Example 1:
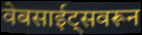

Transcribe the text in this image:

वेबसाईट्सवरून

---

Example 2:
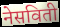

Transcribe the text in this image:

नेसविती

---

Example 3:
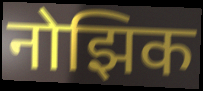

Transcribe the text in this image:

नोझिक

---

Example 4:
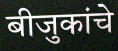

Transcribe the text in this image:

बीजुकांचे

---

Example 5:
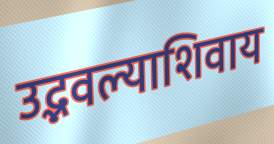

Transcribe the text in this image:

उद्भवल्याशिवाय